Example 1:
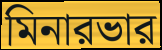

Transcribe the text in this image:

মিনারভার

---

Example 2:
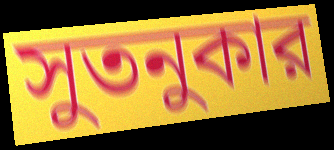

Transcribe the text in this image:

সুতনুকার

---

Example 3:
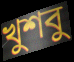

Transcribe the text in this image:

খুশবু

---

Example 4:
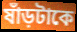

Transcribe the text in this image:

ষাঁড়টাকে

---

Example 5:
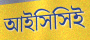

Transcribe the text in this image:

আইসিসিই